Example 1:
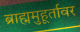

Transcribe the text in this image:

ब्राह्ममुहूर्तावर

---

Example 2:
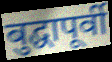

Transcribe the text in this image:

बुद्धापूर्वी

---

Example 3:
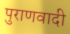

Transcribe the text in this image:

पुराणवादी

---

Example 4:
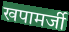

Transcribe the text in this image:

खपामर्जी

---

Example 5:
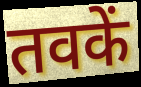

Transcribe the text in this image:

तवकें